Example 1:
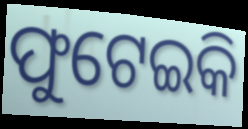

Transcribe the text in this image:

ଫୁଟେଇକି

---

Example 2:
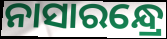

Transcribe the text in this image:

ନାସାରନ୍ଧ୍ରେ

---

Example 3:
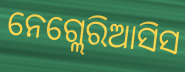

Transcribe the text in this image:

ନେଗ୍ଲେରିଆସିସ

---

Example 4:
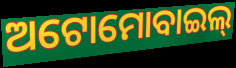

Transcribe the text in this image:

ଅଟୋମୋବାଇଲ୍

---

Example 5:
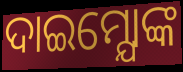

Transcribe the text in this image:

ଦାଇମ୍ଯୋଙ୍କ